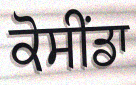
ਕੋਸੀਂਡਾ